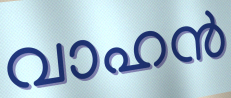
വാഹൻ